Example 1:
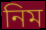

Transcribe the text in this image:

নিম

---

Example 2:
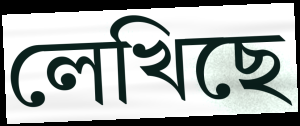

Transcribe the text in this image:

লেখিছে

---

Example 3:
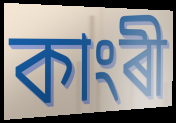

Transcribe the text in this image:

কাংৰী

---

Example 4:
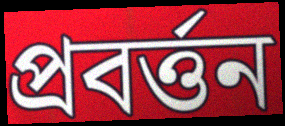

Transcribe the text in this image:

প্ৰবৰ্ত্তন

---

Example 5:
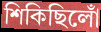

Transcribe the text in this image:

শিকিছিলোঁ